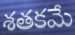
శతకమే